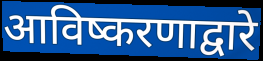
आविष्करणाद्वारे